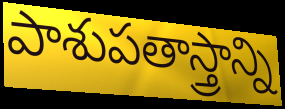
పాశుపతాస్త్రాన్ని